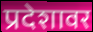
प्रदेशावर